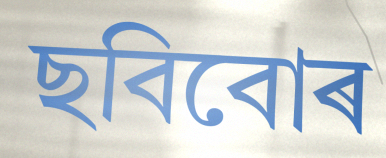
ছবিবোৰ